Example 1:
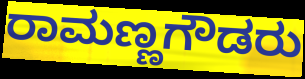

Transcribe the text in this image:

ರಾಮಣ್ಣಗೌಡರು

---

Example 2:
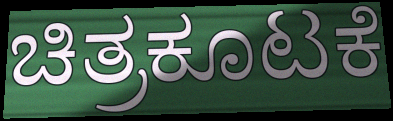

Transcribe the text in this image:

ಚಿತ್ರಕೂಟಕೆ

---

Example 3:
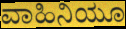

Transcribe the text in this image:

ವಾಹಿನಿಯೂ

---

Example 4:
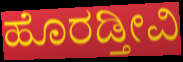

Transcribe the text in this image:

ಹೊರಡ್ತೀವಿ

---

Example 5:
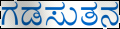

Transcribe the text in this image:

ಗಡಸುತನ